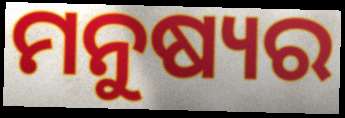
ମନୁଷ୍ୟର